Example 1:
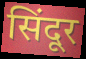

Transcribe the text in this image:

सिंदूर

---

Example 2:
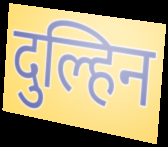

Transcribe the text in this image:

दुल्हिन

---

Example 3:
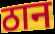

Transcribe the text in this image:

ठान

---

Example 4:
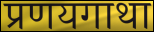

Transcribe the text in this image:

प्रणयगाथा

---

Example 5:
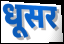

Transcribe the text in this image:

धूसर